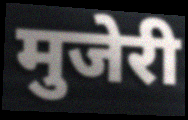
मुजेरी